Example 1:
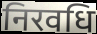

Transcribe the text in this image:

निरवधि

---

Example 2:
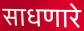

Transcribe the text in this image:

साधणारे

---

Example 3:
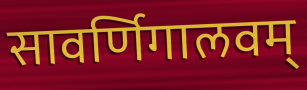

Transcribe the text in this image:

सावर्णिगालवम्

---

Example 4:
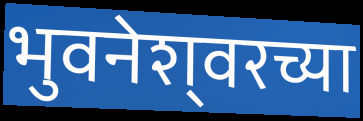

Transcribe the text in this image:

भुवनेश्वरच्या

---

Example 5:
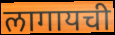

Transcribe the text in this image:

लागायची